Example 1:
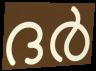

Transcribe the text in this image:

ദർ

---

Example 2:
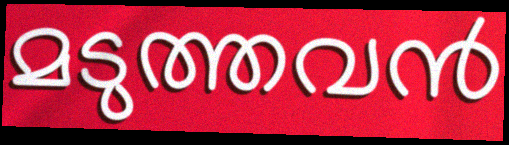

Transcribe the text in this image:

മടുത്തവൻ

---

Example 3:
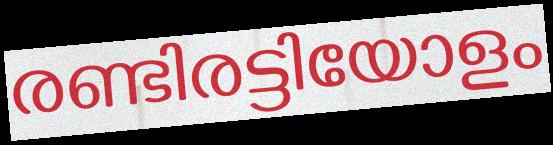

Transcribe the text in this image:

രണ്ടിരട്ടിയോളം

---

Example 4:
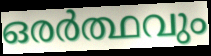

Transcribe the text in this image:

ഒരർത്ഥവും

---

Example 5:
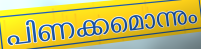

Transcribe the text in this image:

പിണക്കമൊന്നും